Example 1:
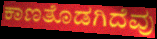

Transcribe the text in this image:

ಕಾಣತೊಡಗಿದೆವು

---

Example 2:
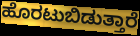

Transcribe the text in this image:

ಹೊರಟುಬಿಡುತ್ತಾರೆ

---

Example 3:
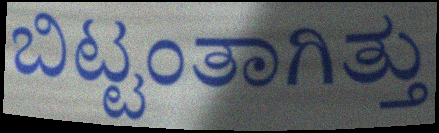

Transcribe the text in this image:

ಬಿಟ್ಟಂತಾಗಿತ್ತು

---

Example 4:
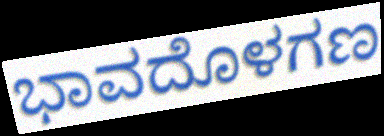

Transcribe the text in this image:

ಭಾವದೊಳಗಣ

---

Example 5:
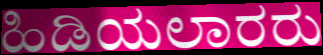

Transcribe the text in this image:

ಹಿಡಿಯಲಾರರು